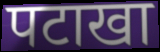
पटाखा